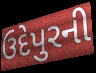
ઉદેપુરની